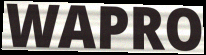
WAPRO